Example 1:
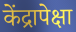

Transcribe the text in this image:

केंद्रापेक्षा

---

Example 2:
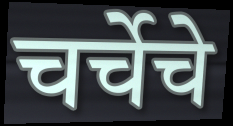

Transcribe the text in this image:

चर्चेचे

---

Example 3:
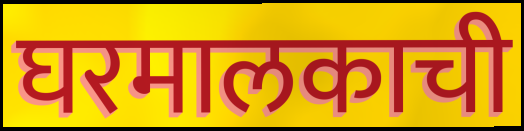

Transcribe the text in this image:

घरमालकाची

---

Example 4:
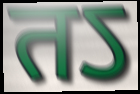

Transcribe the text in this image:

तऽ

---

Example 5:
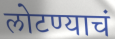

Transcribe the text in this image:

लोटण्याचं